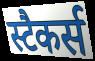
स्टैकर्स